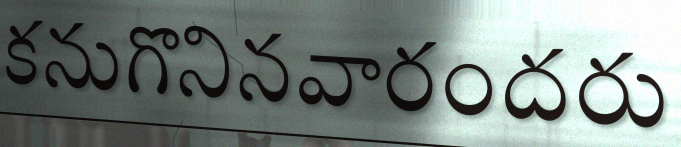
కనుగొనినవారందరు